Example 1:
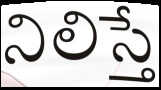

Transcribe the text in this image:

నిలిస్తే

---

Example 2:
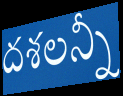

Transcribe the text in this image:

దశలన్నీ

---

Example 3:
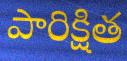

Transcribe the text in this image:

పారిక్షిత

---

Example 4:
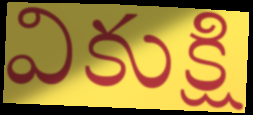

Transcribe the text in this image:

వికుక్షి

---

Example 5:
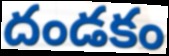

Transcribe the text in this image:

దండకం